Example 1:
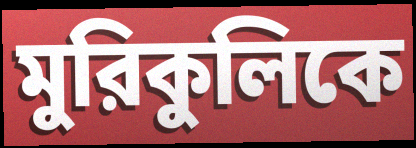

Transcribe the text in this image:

মুরিকুলিকে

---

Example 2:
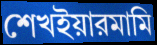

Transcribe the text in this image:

শেখইয়ারমামি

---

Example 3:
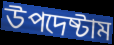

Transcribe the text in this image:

উপদেষ্টাম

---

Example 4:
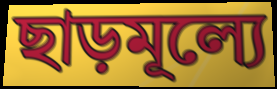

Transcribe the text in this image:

ছাড়মূল্যে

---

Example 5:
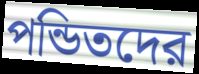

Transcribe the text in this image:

পন্ডিতদের